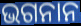
ଭଗନାନ